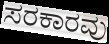
ಸರಕಾರವು